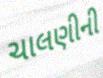
ચાલણીની